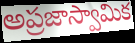
అప్రజాస్వామిక